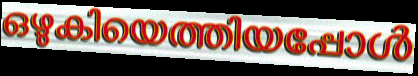
ഒഴുകിയെത്തിയപ്പോൾ